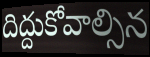
దిద్దుకోవాల్సిన